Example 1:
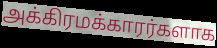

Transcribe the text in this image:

அக்கிரமக்காரர்களாக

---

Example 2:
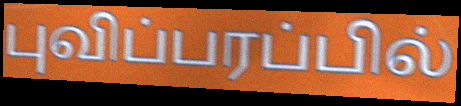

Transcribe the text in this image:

புவிப்பரப்பில்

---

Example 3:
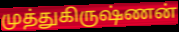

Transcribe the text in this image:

முத்துகிருஷ்ணன்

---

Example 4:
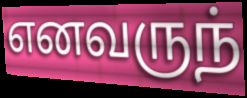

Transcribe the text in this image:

எனவருந்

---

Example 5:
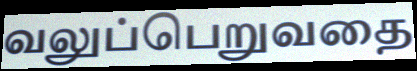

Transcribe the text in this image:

வலுப்பெறுவதை